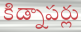
కిడ్నాపర్లు